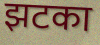
झटका